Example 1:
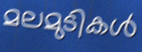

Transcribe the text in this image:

മലമുടികൾ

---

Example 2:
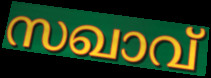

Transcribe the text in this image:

സഖാവ്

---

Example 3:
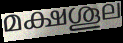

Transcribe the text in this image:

മക്ഷശൂല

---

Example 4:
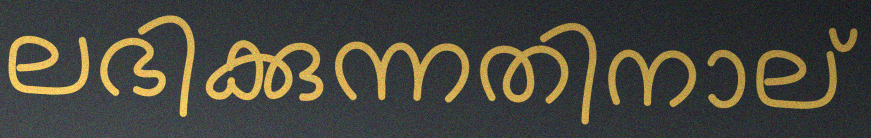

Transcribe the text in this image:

ലഭിക്കുന്നതിനാല്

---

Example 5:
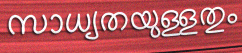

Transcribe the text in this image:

സാധ്യതയുള്ളതും